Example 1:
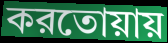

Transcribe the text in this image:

করতোয়ায়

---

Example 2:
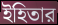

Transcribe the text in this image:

ইহিতার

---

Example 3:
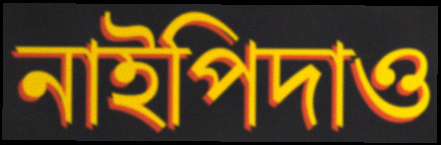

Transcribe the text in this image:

নাইপিদাও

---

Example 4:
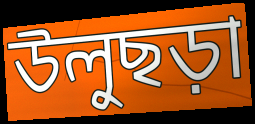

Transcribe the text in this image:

উলুছড়া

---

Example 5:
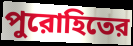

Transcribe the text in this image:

পুরোহিতের